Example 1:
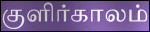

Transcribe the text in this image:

குளிர்காலம்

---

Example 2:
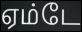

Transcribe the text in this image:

ஏம்டே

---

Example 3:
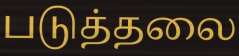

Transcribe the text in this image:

படுத்தலை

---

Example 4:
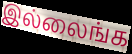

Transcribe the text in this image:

இல்லைங்க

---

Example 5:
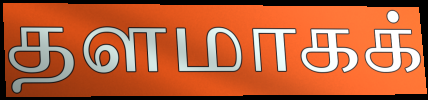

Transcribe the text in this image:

தளமாகக்